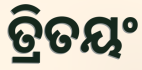
ତ୍ରିତୟଂ